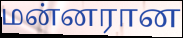
மன்னரான